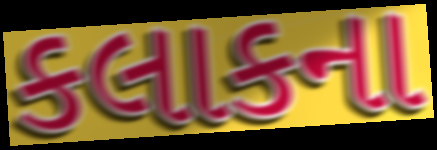
કલાકના